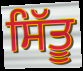
ਸਿੱਤੂ